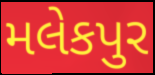
મલેકપુર